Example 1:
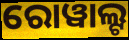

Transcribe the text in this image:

ରୋୱାଲ୍ଟ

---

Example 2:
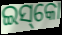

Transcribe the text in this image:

ଇସ୍‌କୋ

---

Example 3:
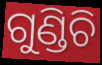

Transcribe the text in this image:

ଗୁଣ୍ଡିଚି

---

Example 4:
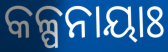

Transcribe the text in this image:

କଳ୍ପନାୟାଃ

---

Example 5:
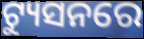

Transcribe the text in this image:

ଟ୍ୟୁସନରେ